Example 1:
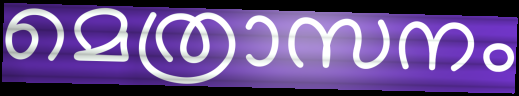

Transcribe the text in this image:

മെത്രാസനം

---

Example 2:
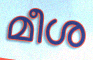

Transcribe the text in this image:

മീശ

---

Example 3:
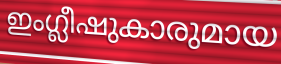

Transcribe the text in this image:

ഇംഗ്ലീഷുകാരുമായ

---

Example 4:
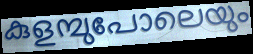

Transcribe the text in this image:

കുളമ്പുപോലെയും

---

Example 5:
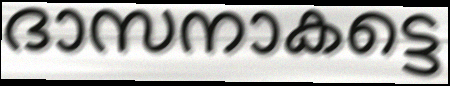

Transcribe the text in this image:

ദാസനാകട്ടെ